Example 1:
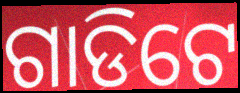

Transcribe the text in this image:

ଗାଡିଟେ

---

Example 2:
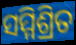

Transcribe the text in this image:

ସମ୍ମିଶ୍ରିତ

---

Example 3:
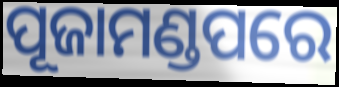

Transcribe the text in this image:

ପୂଜାମଣ୍ଡପରେ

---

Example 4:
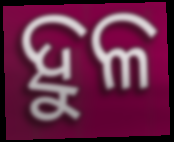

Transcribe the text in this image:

ହୁଳ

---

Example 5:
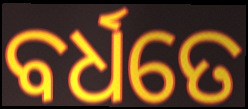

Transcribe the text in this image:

ବର୍ଧତେ